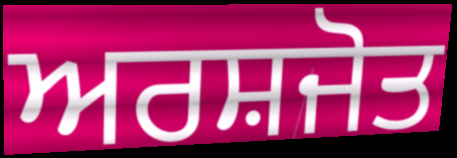
ਅਰਸ਼ਜੋਤ